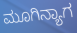
ಮೂಗಿನ್ಯಾಗ